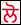
ਲੋ